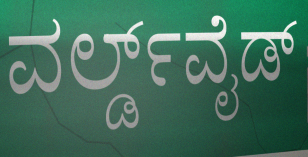
ವರ್ಲ್ಡ್‌ವೈಡ್